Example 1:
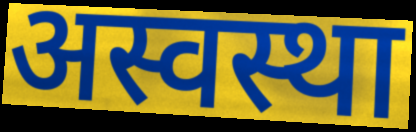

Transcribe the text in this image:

अस्वस्था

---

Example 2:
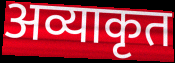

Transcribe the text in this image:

अव्याकृत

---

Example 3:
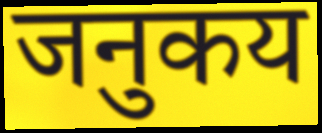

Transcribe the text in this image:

जनुकय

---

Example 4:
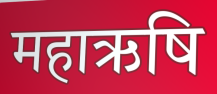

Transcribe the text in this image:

महाऋषि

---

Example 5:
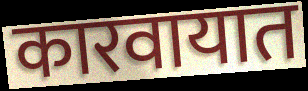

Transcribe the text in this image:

कारवायात